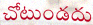
చోటుండదు